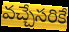
వచ్చేసరికే